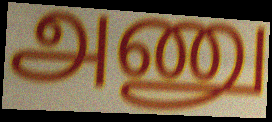
அணு